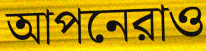
আপনেরাও